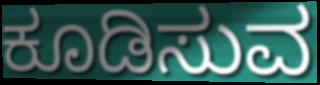
ಕೂಡಿಸುವ